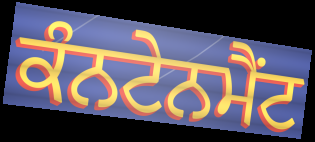
ਕੰਨਟੇਨਮੈਂਟ